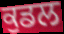
ਕੁਡਲ